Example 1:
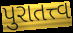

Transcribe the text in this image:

પુરાતત્ત્વ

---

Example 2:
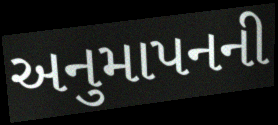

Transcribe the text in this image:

અનુમાપનની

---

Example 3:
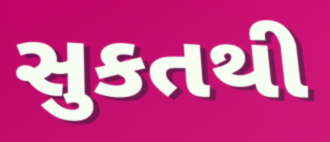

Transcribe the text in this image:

સુકતથી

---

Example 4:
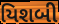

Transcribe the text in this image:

યિશબી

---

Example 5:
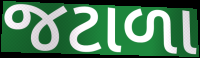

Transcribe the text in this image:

જટાળા